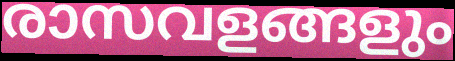
രാസവളങ്ങളും